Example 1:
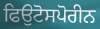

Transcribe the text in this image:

ਫਿਉਟੋਸਪੋਰੀਨ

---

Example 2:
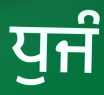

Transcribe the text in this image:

ਧੁਜੰ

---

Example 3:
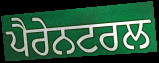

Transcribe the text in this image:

ਪੈਰੇਨਟਰਲ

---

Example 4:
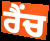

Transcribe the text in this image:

ਰੈਂਚ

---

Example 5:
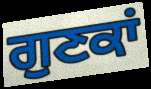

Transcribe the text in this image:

ਗੁਣਕਾਂ